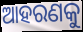
ଆହରଣକୁ